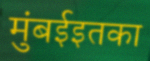
मुंबईइतका